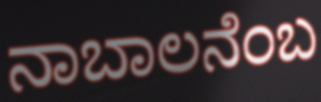
ನಾಬಾಲನೆಂಬ